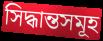
সিদ্ধান্তসমূহ